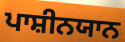
ਪਾਸ਼ੀਨਯਾਨ